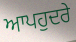
ਆਪਹੁਦਰੇ